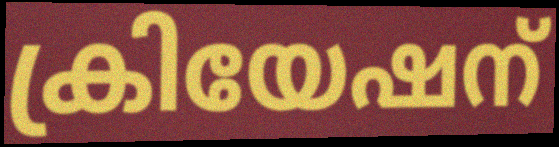
ക്രിയേഷന്